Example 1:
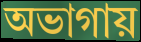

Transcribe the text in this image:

অভাগায়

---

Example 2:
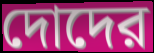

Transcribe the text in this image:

দোদের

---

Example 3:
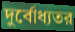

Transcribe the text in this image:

দুর্বোধ্যতর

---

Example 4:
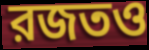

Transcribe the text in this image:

রজতও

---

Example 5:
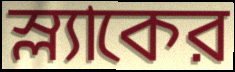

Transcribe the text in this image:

স্ল্যাকের